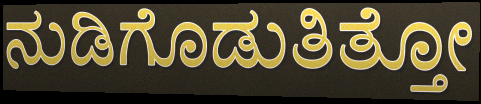
ನುಡಿಗೊಡುತಿತ್ತೋ